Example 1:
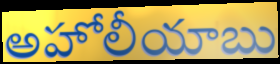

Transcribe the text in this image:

అహోలీయాబు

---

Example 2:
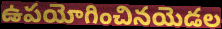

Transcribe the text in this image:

ఉపయోగించినయెడల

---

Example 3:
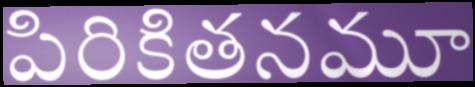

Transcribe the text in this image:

పిరికితనమూ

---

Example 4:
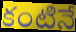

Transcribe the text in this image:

కంటినే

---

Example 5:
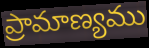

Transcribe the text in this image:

ప్రామాణ్యము